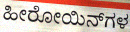
ಹೀರೋಯಿನ್‌ಗಳ